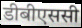
डीबीएससी